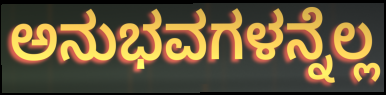
ಅನುಭವಗಳನ್ನೆಲ್ಲ